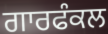
ਗਾਰਫੰਕਲ